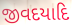
જીવદયાદિ